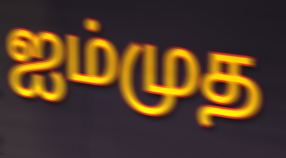
ஐம்முத